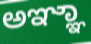
ಅಞ್ಞಾ